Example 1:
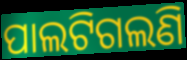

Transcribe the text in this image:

ପାଲଟିଗଲଣି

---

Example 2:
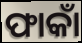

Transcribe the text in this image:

ଫାକାଁ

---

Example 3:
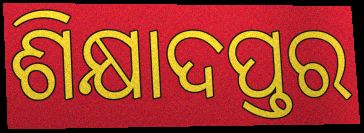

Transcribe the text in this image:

ଶିକ୍ଷାଦପ୍ତର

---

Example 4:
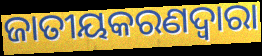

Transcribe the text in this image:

ଜାତୀୟକରଣଦ୍ୱାରା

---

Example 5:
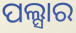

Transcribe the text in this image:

ପଲ୍ସାର